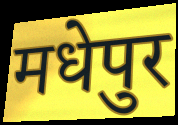
मधेपुर